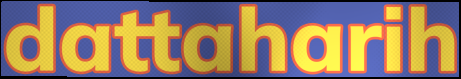
dattaharih